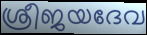
ശ്രീജയദേവ